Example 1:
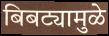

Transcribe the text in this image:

बिबट्यामुळे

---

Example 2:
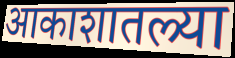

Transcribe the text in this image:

आकाशातल्या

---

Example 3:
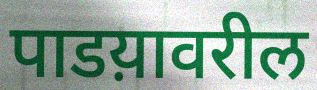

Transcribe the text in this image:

पाडय़ावरील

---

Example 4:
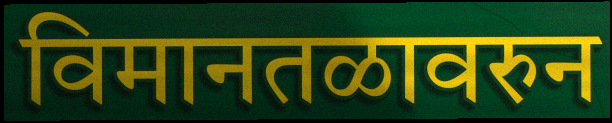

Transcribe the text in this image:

विमानतळावरुन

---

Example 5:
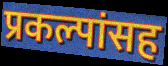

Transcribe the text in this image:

प्रकल्पांसह